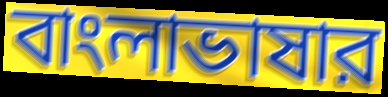
বাংলাভাষার